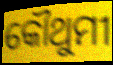
କୌଥୁମୀ